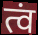
त्वं